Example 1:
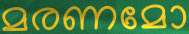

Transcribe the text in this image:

മരണമോ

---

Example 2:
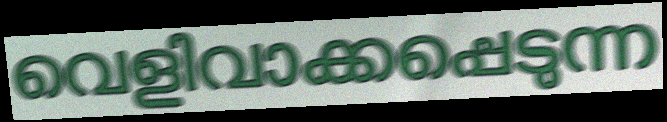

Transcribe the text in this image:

വെളിവാക്കപ്പെടുന്ന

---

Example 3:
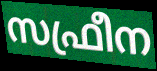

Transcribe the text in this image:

സഫ്രീന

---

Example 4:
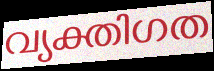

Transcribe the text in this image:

വ്യക്തിഗത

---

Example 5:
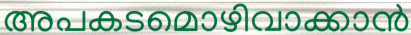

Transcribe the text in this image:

അപകടമൊഴിവാക്കാൻ